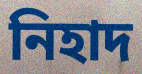
নিহাদ